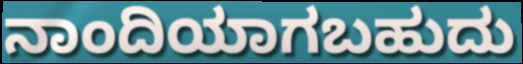
ನಾಂದಿಯಾಗಬಹುದು